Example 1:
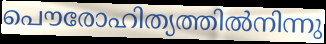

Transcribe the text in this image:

പൌരോഹിത്യത്തിൽനിന്നു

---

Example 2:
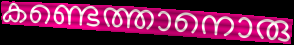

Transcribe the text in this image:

കണ്ടെത്താനൊരു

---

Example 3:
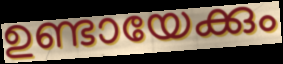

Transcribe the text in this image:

ഉണ്ടായേക്കും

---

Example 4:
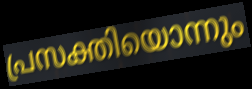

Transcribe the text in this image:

പ്രസക്തിയൊന്നും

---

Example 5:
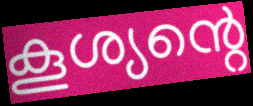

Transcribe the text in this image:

കൂശ്യന്റെ